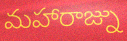
మహారాజ్ను